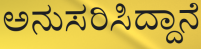
ಅನುಸರಿಸಿದ್ದಾನೆ